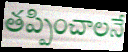
తప్పించాలనే